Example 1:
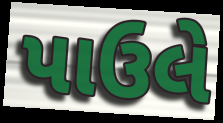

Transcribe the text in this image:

પાઉલે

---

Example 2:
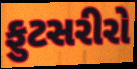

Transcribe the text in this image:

ફુટસરીરો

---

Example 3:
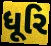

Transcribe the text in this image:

ધૂરિ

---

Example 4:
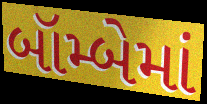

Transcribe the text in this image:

બૉમ્બેમાં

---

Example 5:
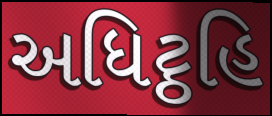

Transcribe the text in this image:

અધિટ્ઠહિ